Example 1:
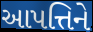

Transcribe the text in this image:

આપત્તિને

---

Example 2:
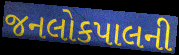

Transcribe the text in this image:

જનલોકપાલની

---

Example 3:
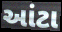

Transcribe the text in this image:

આંટા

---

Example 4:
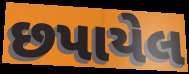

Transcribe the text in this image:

છપાયેલ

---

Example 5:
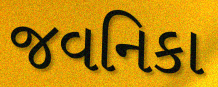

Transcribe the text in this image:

જવનિકા